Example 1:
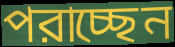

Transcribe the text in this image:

পরাচ্ছেন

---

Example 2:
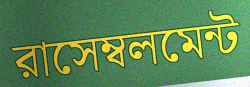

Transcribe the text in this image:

রাসেম্বলমেন্ট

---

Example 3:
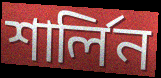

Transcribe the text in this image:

শার্লিন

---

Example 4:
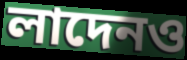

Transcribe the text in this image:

লাদেনও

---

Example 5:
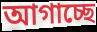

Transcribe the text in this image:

আগাচ্ছে